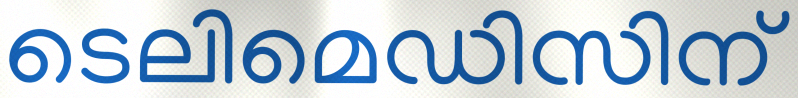
ടെലിമെഡിസിന്